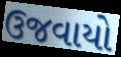
ઉજવાયો